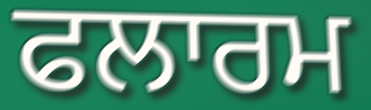
ਫਲਾਰਮ